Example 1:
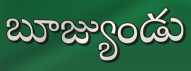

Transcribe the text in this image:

బూజ్యుండు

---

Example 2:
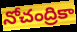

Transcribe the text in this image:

నోచంద్రికా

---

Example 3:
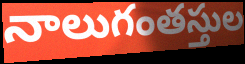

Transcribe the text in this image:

నాలుగంతస్తుల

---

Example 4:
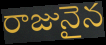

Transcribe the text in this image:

రాజునైన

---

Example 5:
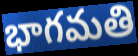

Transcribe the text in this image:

భాగమతి